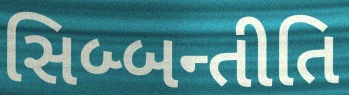
સિબ્બન્તીતિ